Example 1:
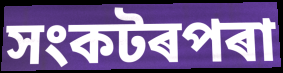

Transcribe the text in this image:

সংকটৰপৰা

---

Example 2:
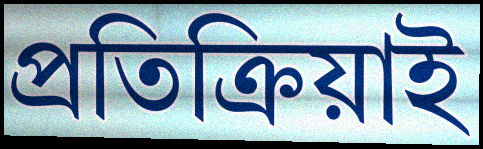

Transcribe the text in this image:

প্ৰতিক্ৰিয়াই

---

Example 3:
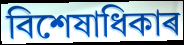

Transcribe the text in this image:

বিশেষাধিকাৰ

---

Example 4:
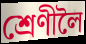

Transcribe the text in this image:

শ্ৰেণীলৈ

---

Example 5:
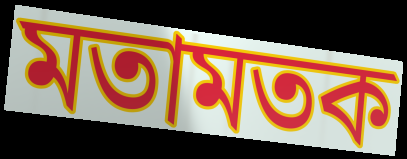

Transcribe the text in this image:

মতামতক